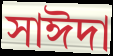
সাঈদা